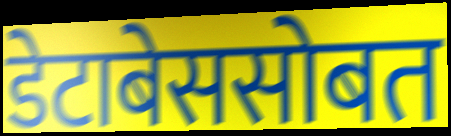
डेटाबेससोबत